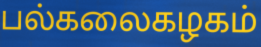
பல்கலைகழகம்